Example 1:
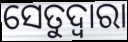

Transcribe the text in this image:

ସେତୁଦ୍ୱାରା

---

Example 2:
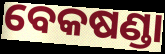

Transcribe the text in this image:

ବେକଷଣ୍ଡା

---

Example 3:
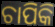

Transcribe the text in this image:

ଚାପିକି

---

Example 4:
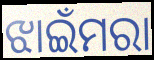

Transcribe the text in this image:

ଝାଇଁମରା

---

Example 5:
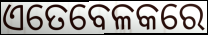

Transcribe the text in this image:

ଏତେବେଳକରେ